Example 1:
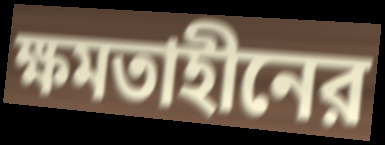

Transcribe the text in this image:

ক্ষমতাহীনের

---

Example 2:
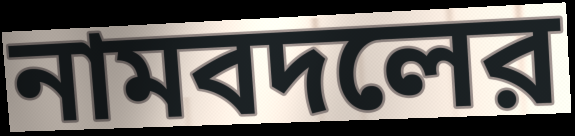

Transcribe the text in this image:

নামবদলের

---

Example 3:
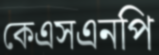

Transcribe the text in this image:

কেএসএনপি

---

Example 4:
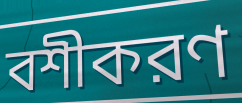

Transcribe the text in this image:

বশীকরণ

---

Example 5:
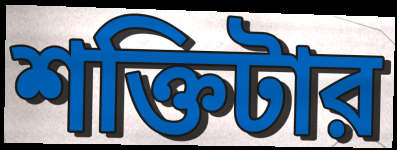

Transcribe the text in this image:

শক্তিটার